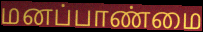
மனப்பாண்மை